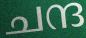
ചന്ദ